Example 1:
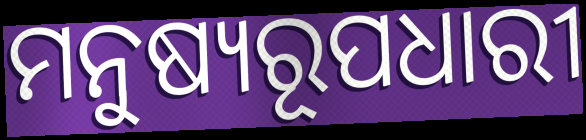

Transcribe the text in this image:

ମନୁଷ୍ୟରୂପଧାରୀ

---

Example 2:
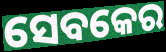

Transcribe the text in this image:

ସେବକେର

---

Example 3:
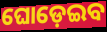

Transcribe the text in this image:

ଘୋଡ଼େଇବ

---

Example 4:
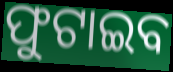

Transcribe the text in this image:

ଫୁଟାଇବ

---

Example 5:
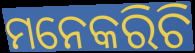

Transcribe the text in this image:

ମନେକରିଚି